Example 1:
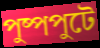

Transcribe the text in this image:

পুষ্পপুটে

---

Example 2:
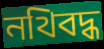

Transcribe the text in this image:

নথিবদ্ধ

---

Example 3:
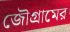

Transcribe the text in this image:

জৌগ্রামের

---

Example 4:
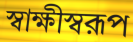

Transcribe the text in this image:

স্বাক্ষীস্বরূপ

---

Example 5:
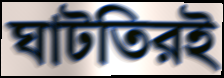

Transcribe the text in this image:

ঘাটতিরই